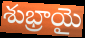
శుభ్రాయై